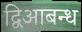
द्विआबन्ध